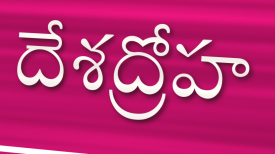
దేశద్రోహ